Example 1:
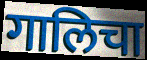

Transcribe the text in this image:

गालिचा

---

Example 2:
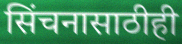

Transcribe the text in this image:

सिंचनासाठीही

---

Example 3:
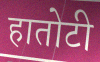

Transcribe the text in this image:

हातोटी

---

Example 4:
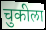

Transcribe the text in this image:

चुकीला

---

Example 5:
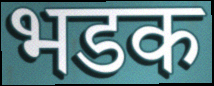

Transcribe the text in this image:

भडक